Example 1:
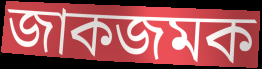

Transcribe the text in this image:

জাকজমক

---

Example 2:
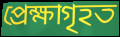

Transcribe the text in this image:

প্ৰেক্ষাগৃহত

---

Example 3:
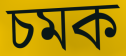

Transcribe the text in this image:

চমক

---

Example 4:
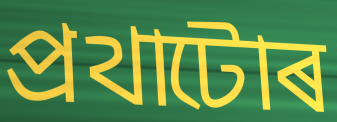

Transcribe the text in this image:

প্ৰথাটোৰ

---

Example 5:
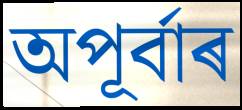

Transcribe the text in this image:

অপূৰ্বাৰ